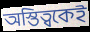
অস্তিত্বকেই